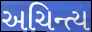
અચિન્ત્ય